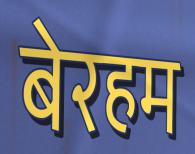
बेरहम